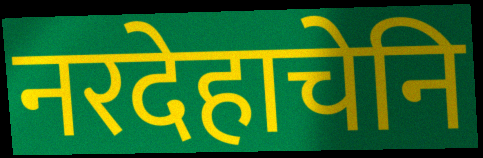
नरदेहाचेनि